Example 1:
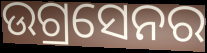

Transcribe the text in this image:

ଉଗ୍ରସେନର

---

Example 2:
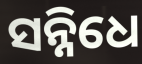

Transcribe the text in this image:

ସନ୍ନିଧେ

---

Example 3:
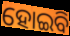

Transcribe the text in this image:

ହୋଇବି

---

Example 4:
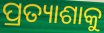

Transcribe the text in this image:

ପ୍ରତ୍ୟାଶାକୁ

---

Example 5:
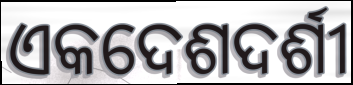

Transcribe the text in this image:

ଏକଦେଶଦର୍ଶୀ